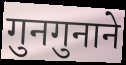
गुनगुनाने